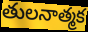
తులనాత్మక